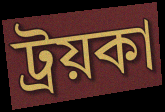
ট্রয়কা